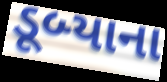
ડૂબ્યાના